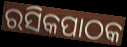
ରସିକପାଠକ